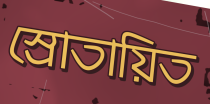
স্রোতায়িত